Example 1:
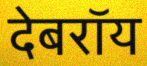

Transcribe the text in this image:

देबरॉय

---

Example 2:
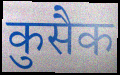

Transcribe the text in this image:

कुसैक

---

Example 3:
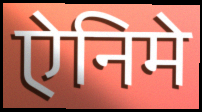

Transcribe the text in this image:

ऐनिमे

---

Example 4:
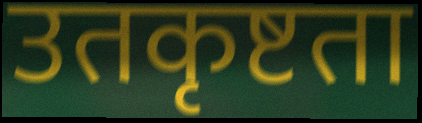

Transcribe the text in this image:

उतकृष्टता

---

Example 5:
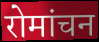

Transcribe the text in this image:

रोमांचन